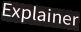
Explainer